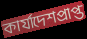
কার্যাদেশপ্রাপ্ত